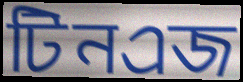
টিনএজ